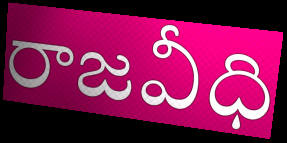
రాజవీధి